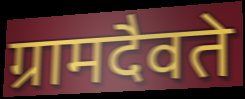
ग्रामदैवते